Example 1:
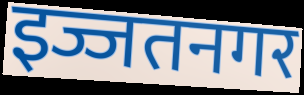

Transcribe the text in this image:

इज्जतनगर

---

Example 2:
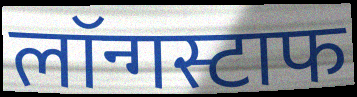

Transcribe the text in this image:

लॉन्गस्टाफ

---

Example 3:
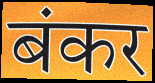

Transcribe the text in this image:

बंकर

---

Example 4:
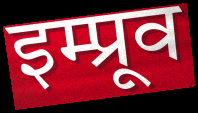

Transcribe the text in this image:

इम्प्रूव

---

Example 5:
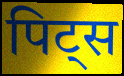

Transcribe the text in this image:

पिट्स